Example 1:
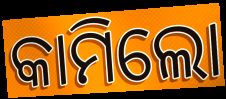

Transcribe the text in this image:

କାମିଲୋ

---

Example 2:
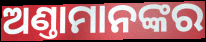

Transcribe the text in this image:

ଅଣ୍ତାମାନଙ୍କର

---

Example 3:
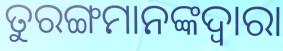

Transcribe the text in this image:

ତୁରଙ୍ଗମାନଙ୍କଦ୍ୱାରା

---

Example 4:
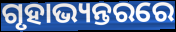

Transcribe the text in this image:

ଗୃହାଭ୍ୟନ୍ତରରେ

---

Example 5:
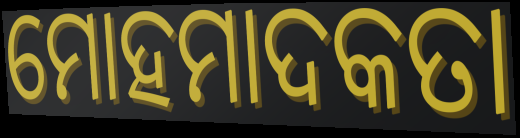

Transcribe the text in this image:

ମୋହମାଦକତା